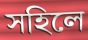
সহিলে